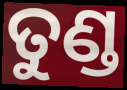
ତୁଣ୍ଡ